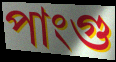
পাংগু